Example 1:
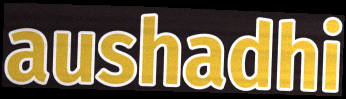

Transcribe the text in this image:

aushadhi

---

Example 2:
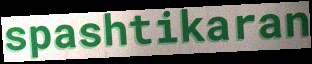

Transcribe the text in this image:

spashtikaran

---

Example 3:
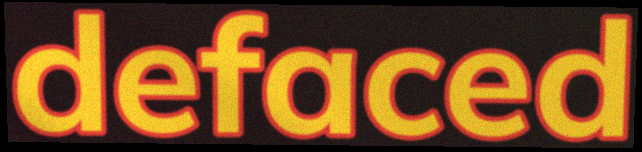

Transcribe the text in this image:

defaced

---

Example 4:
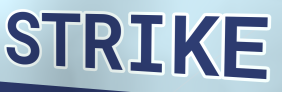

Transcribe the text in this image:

STRIKE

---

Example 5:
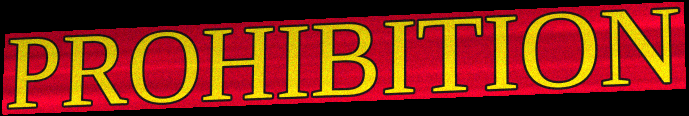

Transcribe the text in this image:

PROHIBITION